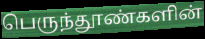
பெருந்தூண்களின்